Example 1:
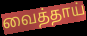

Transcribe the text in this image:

வைத்தாய்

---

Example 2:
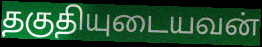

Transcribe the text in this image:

தகுதியுடையவன்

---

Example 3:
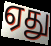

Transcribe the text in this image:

ஏது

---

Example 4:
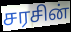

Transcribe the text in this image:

சரசின்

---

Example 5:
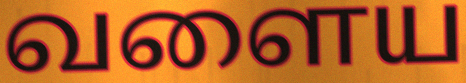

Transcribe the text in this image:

வளைய